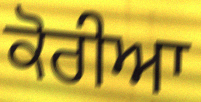
ਕੋਰੀਆ